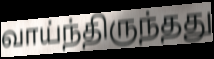
வாய்ந்திருந்தது